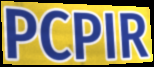
PCPIR